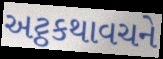
અટ્ઠકથાવચને